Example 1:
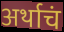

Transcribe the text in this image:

अर्थाचं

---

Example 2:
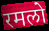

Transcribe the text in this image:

रमलो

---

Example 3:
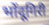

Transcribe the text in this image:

भोंदूगिरी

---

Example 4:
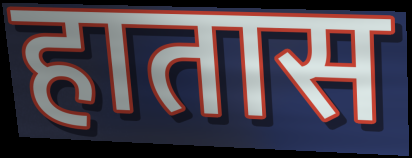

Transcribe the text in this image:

हातास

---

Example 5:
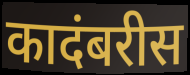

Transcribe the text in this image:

कादंबरीस